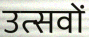
उत्सवों